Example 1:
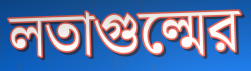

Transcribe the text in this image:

লতাগুল্মের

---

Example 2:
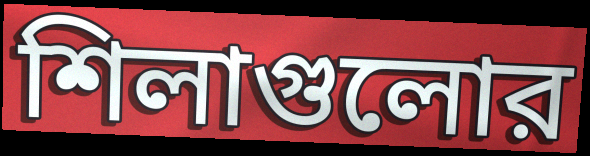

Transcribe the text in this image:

শিলাগুলোর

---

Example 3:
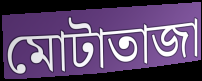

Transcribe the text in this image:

মোটাতাজা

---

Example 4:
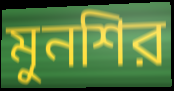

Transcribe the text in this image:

মুনশির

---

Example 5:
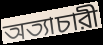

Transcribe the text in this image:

অত্যাচারী